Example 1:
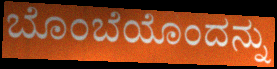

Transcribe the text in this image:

ಬೊಂಬೆಯೊಂದನ್ನು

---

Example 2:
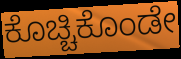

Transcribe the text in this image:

ಕೊಚ್ಚಿಕೊಂಡೇ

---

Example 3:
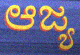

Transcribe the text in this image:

ಆಜ್ಯ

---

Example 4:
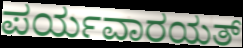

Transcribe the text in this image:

ಪರ್ಯವಾರಯತ್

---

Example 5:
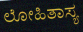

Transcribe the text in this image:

ಲೋಹಿತಾಸ್ಯ